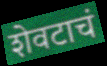
शेवटाचं